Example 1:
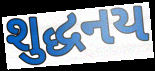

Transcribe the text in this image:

શુદ્ધનય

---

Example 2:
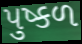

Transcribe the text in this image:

પુષ્કળ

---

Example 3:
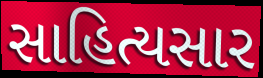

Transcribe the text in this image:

સાહિત્યસાર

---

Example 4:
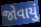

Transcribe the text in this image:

જોવાયું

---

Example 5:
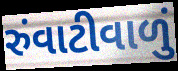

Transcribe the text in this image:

રુંવાટીવાળું